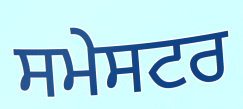
ਸਮੇਸਟਰ